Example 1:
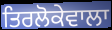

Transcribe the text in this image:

ਤਿਰਲੋਕੇਵਾਲਾ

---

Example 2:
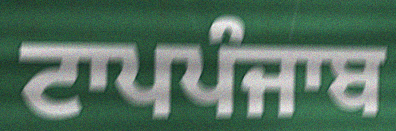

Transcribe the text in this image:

ਟਾਪਪੰਜਾਬ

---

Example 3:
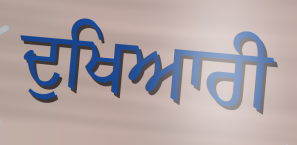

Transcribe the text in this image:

ਦੁਖਿਆਰੀ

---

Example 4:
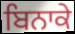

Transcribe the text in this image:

ਬਿਨਾਕੇ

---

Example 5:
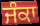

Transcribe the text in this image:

ਜੰਕਾ